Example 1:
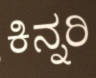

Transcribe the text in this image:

ಕಿನ್ನರಿ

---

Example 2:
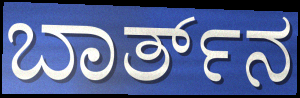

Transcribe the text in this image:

ಬಾರ್ತ್‌ನ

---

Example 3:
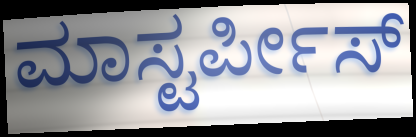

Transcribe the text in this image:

ಮಾಸ್ಟರ್ಪೀಸ್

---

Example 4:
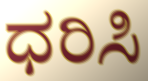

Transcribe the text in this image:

ಧರಿಸಿ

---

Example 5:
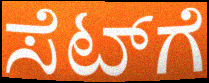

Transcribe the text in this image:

ಸೆಟ್‌ಗೆ